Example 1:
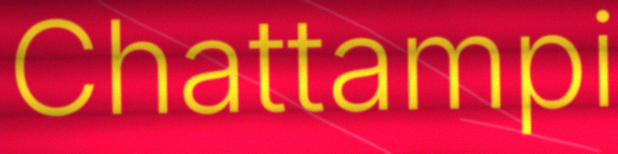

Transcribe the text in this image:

Chattampi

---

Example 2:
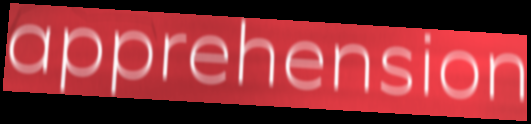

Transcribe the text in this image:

apprehension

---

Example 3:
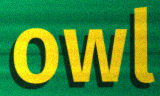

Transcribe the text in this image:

owl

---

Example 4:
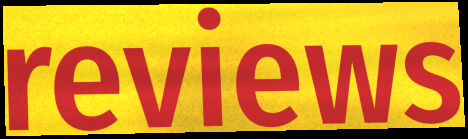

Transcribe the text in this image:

reviews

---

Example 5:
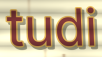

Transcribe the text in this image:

tudi